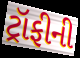
ટ્રૉફીની